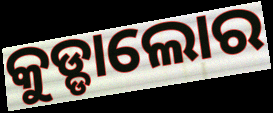
କୁଡ୍ଡାଲୋର